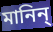
মানিন্